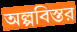
অল্পবিস্তর